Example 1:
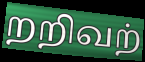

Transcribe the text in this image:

றறிவற்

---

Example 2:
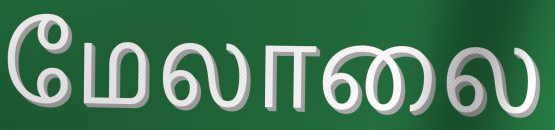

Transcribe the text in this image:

மேலாலை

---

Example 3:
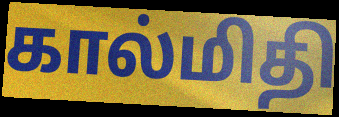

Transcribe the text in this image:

கால்மிதி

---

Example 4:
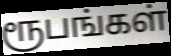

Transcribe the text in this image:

ரூபங்கள்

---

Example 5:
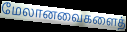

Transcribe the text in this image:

மேலானவைகளைத்